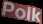
Polk